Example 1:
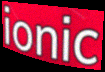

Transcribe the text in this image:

ionic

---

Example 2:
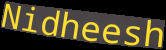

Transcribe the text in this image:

Nidheesh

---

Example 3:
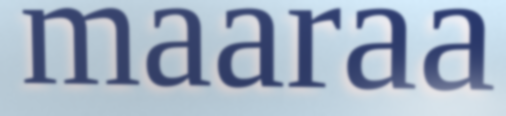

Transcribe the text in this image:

maaraa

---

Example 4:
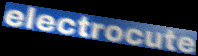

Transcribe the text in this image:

electrocute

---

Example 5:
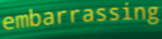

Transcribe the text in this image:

embarrassing